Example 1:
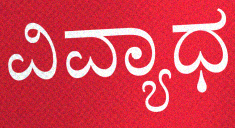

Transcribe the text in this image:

ವಿವ್ಯಾಧ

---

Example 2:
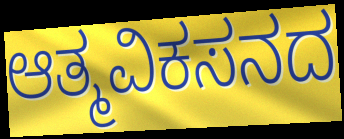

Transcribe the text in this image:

ಆತ್ಮವಿಕಸನದ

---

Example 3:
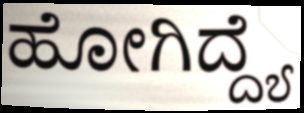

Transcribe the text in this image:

ಹೋಗಿದ್ದ್ಯೆ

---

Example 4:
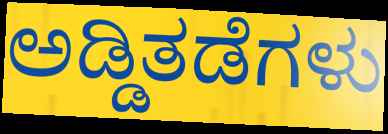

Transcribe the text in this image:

ಅಡ್ಡಿತಡೆಗಳು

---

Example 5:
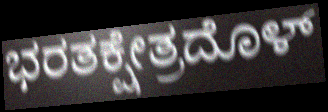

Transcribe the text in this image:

ಭರತಕ್ಷೇತ್ರದೊಳ್